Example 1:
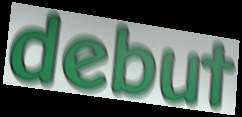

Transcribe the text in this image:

debut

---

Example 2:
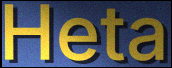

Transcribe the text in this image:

Heta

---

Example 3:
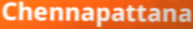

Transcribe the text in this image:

Chennapattana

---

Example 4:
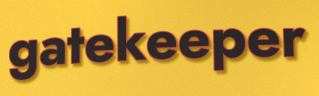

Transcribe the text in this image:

gatekeeper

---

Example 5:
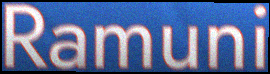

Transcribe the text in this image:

Ramuni